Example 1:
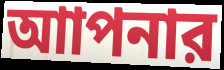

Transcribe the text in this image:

আাপনার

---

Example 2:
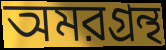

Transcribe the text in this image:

অমরগ্রন্থ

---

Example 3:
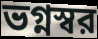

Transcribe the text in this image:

ভগ্নস্বর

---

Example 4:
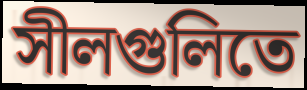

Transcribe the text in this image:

সীলগুলিতে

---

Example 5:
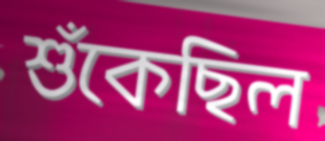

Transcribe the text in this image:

শুঁকেছিল